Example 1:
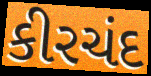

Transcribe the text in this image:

કીરચંદ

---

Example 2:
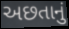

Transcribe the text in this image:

અછતાનું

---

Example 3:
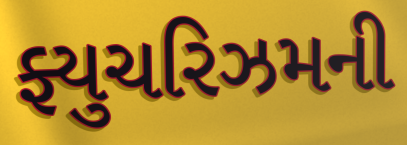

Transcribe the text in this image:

ફ્યુચરિઝમની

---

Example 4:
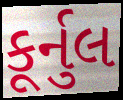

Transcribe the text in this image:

કૂર્નુલ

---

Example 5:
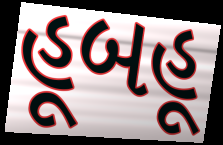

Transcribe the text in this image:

હૂબહૂ